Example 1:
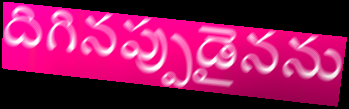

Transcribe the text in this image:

దిగినప్పుడైనను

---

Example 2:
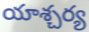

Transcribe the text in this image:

యాశ్చర్య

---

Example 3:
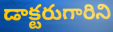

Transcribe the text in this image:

డాక్టరుగారిని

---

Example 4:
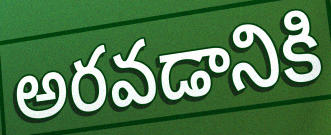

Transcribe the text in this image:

అరవడానికి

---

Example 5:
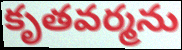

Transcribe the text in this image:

కృతవర్మను